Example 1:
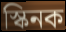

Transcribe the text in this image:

স্কিনক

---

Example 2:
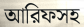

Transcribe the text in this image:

আরিফসহ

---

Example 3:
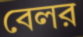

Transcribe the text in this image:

বেলর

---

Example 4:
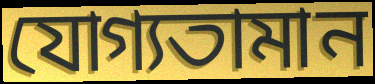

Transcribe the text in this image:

যোগ্যতামান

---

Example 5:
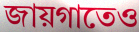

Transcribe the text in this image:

জায়গাতেও